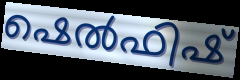
ഷെൽഫിഷ്